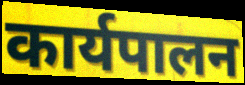
कार्यपालन